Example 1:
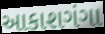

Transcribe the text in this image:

આકાશગંગા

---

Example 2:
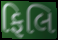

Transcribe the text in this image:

ફિલિ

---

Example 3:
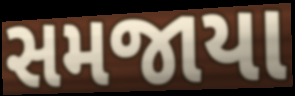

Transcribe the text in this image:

સમજાયા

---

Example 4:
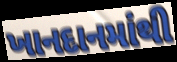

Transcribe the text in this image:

ખાનદાનમાંથી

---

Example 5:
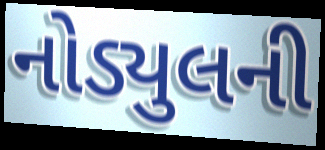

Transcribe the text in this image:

નોડ્યુલની